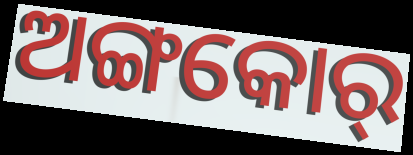
ଅଙ୍ଗକୋର୍